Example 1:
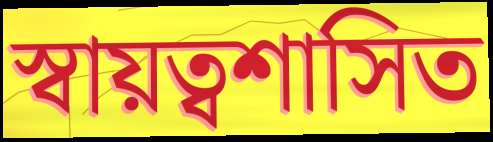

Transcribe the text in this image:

স্বায়ত্বশাসিত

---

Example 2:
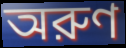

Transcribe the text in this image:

অৰুণ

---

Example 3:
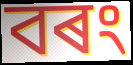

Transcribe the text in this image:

বৰং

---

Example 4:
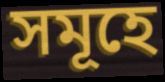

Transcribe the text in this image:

সমূহে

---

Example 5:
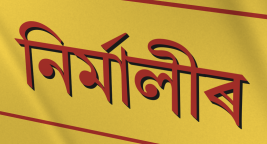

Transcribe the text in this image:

নিৰ্মালীৰ